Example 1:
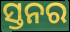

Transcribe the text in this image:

ସ୍ତନର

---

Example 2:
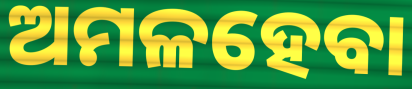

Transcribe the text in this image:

ଅମଳହେବା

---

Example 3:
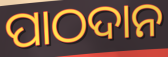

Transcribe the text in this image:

ପାଠଦାନ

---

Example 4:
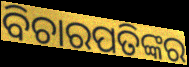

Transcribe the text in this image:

ବିଚାରପତିଙ୍କର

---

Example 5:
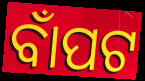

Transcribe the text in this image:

ବାଁପଟ